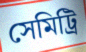
সেমিট্রি